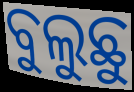
ବୁଲୁଛୁ